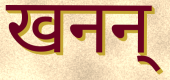
खनन्